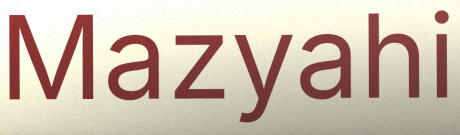
Mazyahi